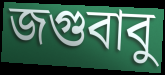
জগুবাবু